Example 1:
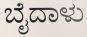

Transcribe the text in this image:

ಬೈದಾಳು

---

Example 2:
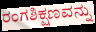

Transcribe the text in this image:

ರಂಗಶಿಕ್ಷಣವನ್ನು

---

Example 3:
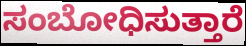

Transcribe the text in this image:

ಸಂಬೋಧಿಸುತ್ತಾರೆ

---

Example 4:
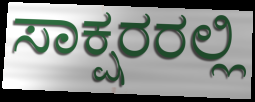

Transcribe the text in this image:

ಸಾಕ್ಷರರಲ್ಲಿ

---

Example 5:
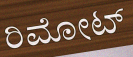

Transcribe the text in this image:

ರಿಮೋಟ್